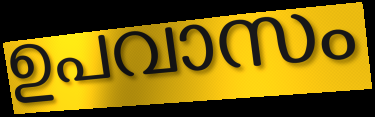
ഉപവാസം